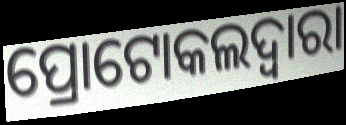
ପ୍ରୋଟୋକଲଦ୍ୱାରା